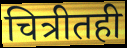
चित्रीतही